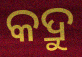
କଦ୍ରୁ